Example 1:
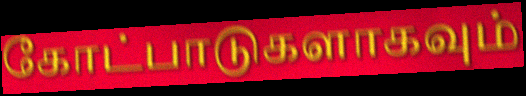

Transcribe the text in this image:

கோட்பாடுகளாகவும்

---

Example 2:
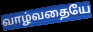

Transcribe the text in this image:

வாழ்வதையே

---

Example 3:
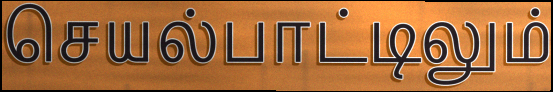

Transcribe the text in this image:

செயல்பாட்டிலும்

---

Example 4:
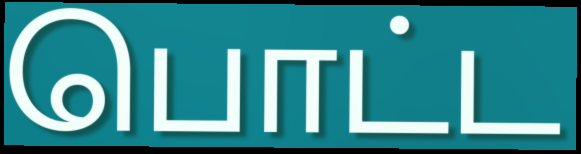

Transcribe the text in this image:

பொட்ட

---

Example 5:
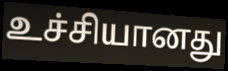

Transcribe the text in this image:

உச்சியானது